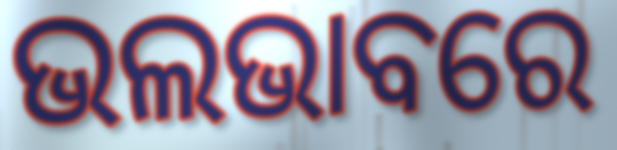
ଭଲଭାବରେ